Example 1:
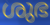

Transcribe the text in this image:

ശുഭ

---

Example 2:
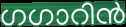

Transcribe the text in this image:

ഗഗാറിൻ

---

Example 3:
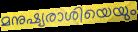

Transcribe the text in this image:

മനുഷ്യരാശിയെയും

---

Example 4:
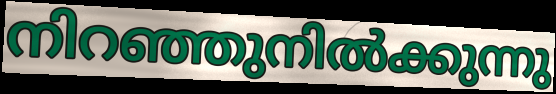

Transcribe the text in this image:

നിറഞ്ഞുനിൽക്കുന്നു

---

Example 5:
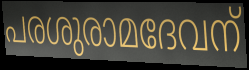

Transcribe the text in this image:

പരശുരാമദേവന്